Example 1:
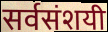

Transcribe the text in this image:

सर्वसंशयी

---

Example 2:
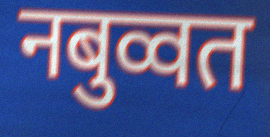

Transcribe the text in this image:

नबुव्वत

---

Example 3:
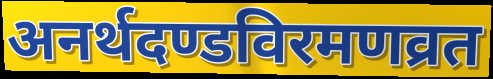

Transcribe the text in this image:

अनर्थदण्डविरमणव्रत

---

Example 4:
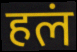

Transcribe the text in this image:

हलं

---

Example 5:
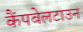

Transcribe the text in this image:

कैंपबेलटाउन